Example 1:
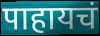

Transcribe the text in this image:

पाहायचं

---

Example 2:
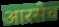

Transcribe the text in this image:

आरसेच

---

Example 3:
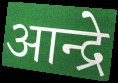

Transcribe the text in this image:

आन्द्रे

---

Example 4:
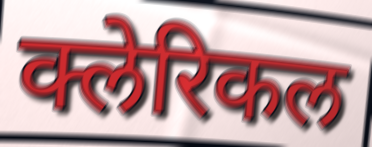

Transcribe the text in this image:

क्लेरिकल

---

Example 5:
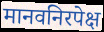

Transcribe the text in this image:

मानवनिरपेक्ष